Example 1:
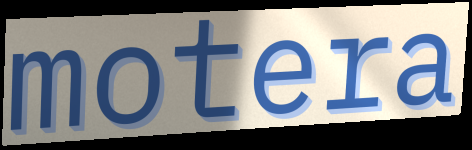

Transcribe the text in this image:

motera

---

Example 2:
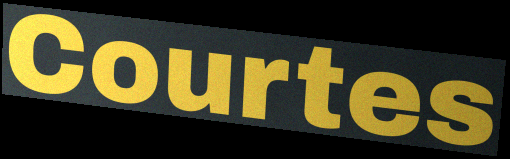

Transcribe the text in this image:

Courtes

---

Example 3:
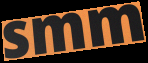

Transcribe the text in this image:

smm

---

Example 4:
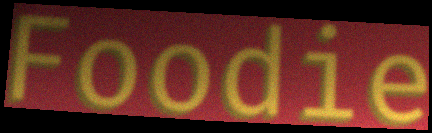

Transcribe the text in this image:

Foodie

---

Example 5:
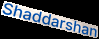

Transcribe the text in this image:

Shaddarshan